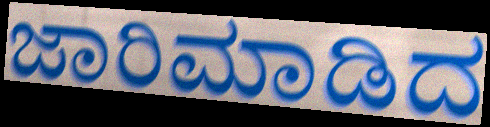
ಜಾರಿಮಾಡಿದ